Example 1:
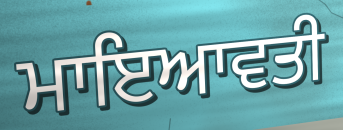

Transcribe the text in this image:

ਮਾਇਆਵਤੀ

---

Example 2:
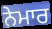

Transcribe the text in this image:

ਨੇਮਾਰ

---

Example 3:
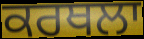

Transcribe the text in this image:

ਕਰਥਲਾ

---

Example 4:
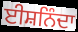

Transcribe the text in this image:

ਈਸ਼ਨਿੰਦਾ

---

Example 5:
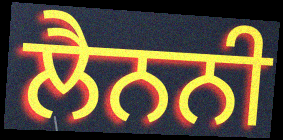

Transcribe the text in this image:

ਲੈਨਨੀ